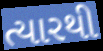
ત્યારથી